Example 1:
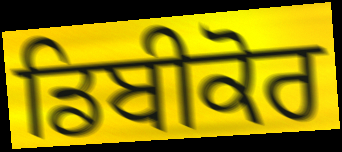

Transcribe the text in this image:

ਡਿਬੀਕੋਰ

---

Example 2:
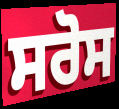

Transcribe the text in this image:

ਸਰੋਸ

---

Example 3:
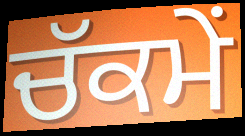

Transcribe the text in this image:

ਚੱਕਮੇਂ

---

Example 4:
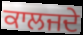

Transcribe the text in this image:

ਕਾਲਜਦੇ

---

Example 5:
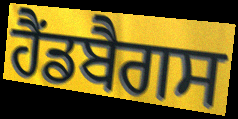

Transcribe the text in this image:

ਹੈਂਡਬੈਗਸ